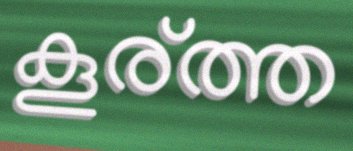
കൂര്ത്ത